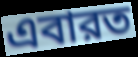
এবারত